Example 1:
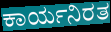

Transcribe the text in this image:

ಕಾರ್ಯನಿರತ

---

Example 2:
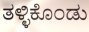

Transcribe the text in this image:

ತಳ್ಳಿಕೊಂಡು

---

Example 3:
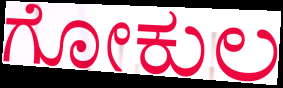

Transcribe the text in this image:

ಗೋಕುಲ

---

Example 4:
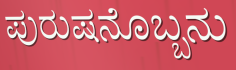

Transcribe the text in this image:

ಪುರುಷನೊಬ್ಬನು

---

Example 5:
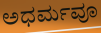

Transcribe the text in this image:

ಅಧರ್ಮವೂ